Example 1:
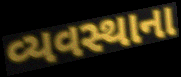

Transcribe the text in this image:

વ્યવસ્થાના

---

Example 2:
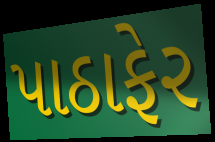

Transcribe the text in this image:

પાઠાફેર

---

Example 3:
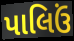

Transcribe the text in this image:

પાલિઉં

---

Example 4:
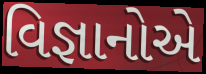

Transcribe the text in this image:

વિજ્ઞાનોએ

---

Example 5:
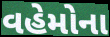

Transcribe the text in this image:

વહેમોના